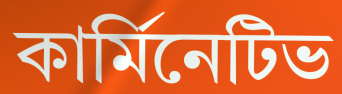
কার্মিনেটিভ